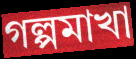
গল্পমাখা